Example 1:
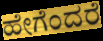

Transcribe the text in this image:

ಹೇಗೆಂದರೆ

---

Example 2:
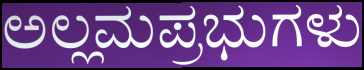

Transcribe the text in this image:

ಅಲ್ಲಮಪ್ರಭುಗಳು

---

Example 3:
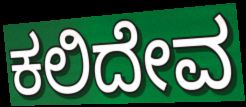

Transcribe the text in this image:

ಕಲಿದೇವ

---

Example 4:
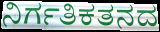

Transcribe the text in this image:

ನಿರ್ಗತಿಕತನದ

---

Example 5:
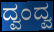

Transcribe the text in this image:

ದ್ವಂದ್ವ